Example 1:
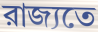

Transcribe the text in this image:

রাজ্যতে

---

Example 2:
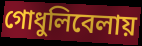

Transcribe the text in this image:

গোধুলিবেলায়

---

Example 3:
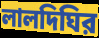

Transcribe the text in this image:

লালদিঘির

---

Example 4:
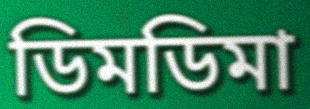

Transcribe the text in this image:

ডিমডিমা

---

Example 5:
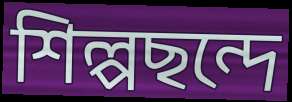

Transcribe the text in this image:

শিল্পছন্দে